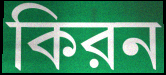
কিরন